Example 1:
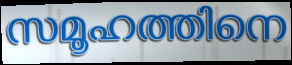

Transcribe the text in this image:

സമൂഹത്തിനെ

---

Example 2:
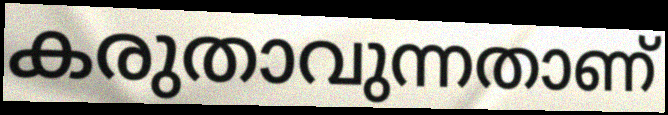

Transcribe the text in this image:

കരുതാവുന്നതാണ്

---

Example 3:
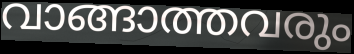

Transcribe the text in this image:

വാങ്ങാത്തവരും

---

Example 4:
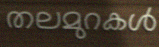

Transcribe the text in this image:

തലമുറകൾ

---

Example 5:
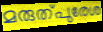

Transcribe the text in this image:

മരുത്പുരേശ